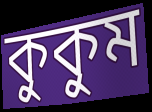
কুকুম